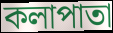
কলাপাতা